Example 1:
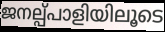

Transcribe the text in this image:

ജനല്പ്പാളിയിലൂടെ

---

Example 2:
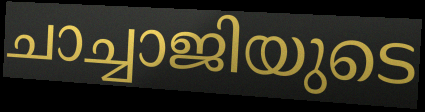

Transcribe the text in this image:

ചാച്ചാജിയുടെ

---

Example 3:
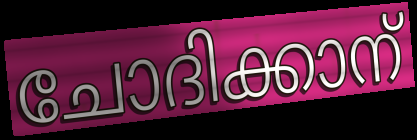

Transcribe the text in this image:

ചോദിക്കാന്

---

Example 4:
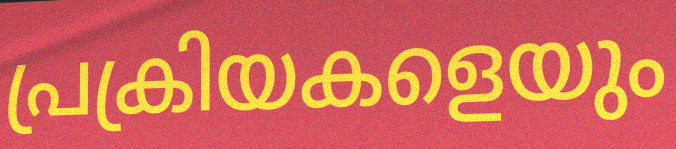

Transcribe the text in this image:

പ്രക്രിയകളെയും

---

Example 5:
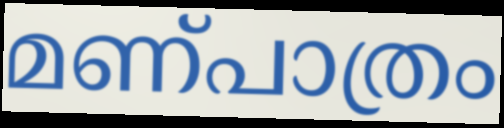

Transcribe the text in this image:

മണ്പാത്രം